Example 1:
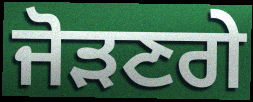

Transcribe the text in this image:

ਜੋੜਣਗੇ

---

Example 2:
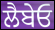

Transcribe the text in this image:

ਲੈਬੇਓ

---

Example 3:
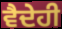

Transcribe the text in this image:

ਵੈਦੇਹੀ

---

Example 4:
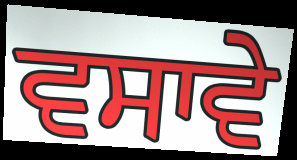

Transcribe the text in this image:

ਵਸਾਵੇ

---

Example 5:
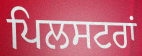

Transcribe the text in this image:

ਪਿਲਸਟਰਾਂ